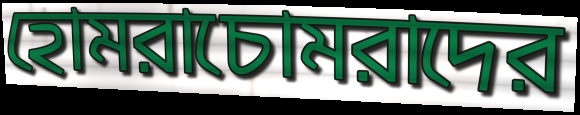
হোমরাচোমরাদের